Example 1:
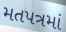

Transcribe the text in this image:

મતપત્રમાં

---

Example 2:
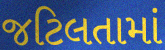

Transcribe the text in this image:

જટિલતામાં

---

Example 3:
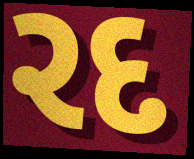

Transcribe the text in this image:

રદ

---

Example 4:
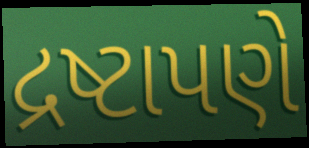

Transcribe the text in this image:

દ્રષ્ટાપણે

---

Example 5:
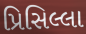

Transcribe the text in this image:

પ્રિસિલ્લા